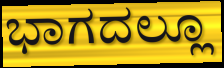
ಭಾಗದಲ್ಲೂ